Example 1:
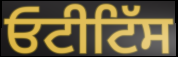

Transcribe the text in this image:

ਓਟੀਟਿੱਸ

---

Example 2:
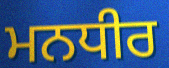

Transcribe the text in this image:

ਮਨਧੀਰ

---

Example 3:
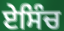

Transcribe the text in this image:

ਏਸਿੰਚ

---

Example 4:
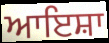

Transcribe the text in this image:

ਆਇਸ਼ਾ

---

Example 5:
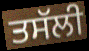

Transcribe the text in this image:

ਤਸੱਲੀ